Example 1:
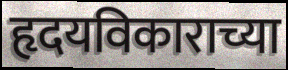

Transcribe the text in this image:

हृदयविकाराच्या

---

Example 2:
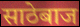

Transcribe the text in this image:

साठेबाज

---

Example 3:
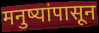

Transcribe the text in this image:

मनुष्यांपासून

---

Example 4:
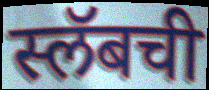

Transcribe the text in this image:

स्लॅबची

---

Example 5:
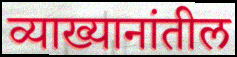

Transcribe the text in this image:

व्याख्यानांतील